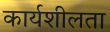
कार्यशीलता